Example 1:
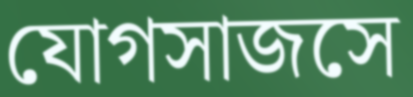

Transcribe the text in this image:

যোগসাজসে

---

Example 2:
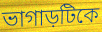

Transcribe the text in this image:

ভাগাড়টিকে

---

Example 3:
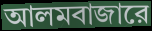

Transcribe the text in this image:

আলমবাজারে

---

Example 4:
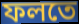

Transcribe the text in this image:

ফলতে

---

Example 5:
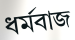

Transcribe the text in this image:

ধর্মবাজ